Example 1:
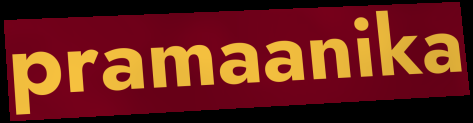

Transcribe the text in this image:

pramaanika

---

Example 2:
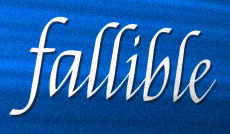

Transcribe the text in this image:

fallible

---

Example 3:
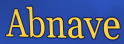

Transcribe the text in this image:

Abnave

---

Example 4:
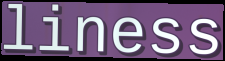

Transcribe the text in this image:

liness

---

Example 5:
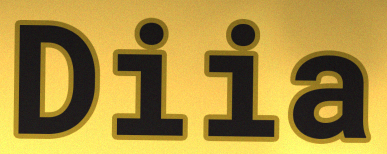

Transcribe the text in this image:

Diia